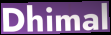
Dhimal